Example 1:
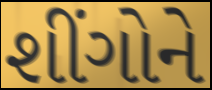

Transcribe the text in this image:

શીંગોને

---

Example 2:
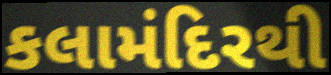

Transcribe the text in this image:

કલામંદિરથી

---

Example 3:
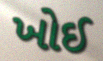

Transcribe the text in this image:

ખોઈ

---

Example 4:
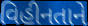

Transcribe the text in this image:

વિહીનતાને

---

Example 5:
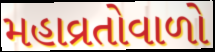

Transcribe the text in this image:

મહાવ્રતોવાળો